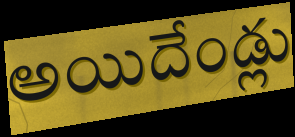
అయిదేండ్లు